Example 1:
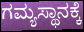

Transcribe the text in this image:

ಗಮ್ಯಸ್ಥಾನಕ್ಕೆ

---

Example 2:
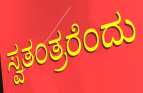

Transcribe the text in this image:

ಸ್ವತಂತ್ರರೆಂದು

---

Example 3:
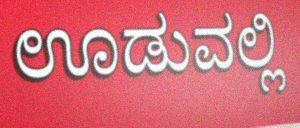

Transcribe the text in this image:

ಊಡುವಲ್ಲಿ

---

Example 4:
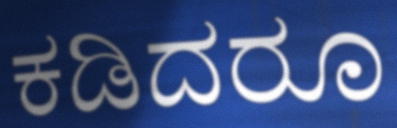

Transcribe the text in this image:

ಕಡಿದರೂ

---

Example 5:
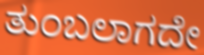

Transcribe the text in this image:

ತುಂಬಲಾಗದೇ